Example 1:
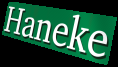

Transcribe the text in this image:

Haneke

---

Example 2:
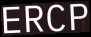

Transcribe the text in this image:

ERCP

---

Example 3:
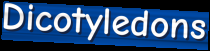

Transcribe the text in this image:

Dicotyledons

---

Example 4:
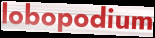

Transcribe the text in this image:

lobopodium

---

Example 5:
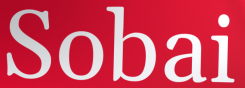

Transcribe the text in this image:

Sobai